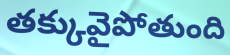
తక్కువైపోతుంది